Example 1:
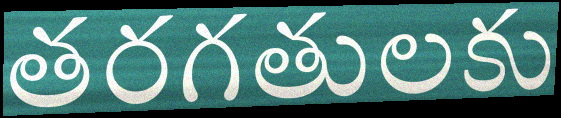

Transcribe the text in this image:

తరగతులకు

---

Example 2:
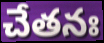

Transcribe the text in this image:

చేతనః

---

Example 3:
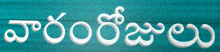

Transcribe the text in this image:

వారంరోజులు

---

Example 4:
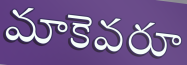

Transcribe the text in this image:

మాకెవరూ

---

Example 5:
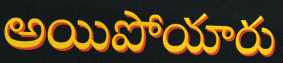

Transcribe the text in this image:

అయిపోయారు